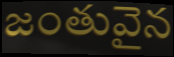
జంతువైన